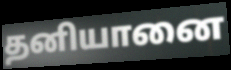
தனியானை